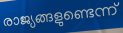
രാജ്യങ്ങളുണ്ടെന്ന്